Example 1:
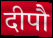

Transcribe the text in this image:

दीपौ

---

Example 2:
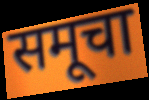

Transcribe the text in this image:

समूचा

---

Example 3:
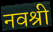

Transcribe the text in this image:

नवश्री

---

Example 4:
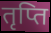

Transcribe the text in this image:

तृप्ति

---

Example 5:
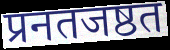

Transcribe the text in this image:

प्रनतजष्ठत